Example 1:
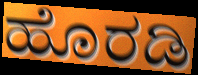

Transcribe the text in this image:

ಹೊರಡಿ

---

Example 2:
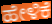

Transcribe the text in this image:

ಹೇಳಿಕೆ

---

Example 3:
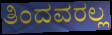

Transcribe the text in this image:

ತಿಂದವರಲ್ಲ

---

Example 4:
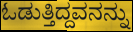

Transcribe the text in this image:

ಓಡುತ್ತಿದ್ದವನನ್ನು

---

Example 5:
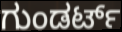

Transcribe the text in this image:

ಗುಂಡರ್ಟ್